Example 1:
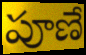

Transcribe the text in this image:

పూణే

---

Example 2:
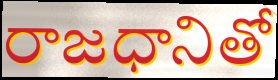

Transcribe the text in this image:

రాజధానితో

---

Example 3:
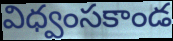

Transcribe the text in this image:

విధ్వంసకాండ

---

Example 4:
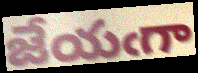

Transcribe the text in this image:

జేయఁగా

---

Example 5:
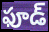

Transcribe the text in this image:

ఫూడ్